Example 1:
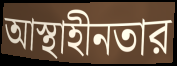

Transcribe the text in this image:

আস্থাহীনতার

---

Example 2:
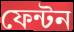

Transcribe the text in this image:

ফেন্টন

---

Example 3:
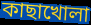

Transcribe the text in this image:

কাছাখোলা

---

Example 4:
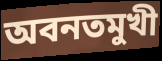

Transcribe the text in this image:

অবনতমুখী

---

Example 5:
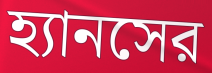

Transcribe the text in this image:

হ্যানসের